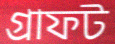
গ্রাফট